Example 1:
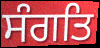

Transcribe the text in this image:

ਸੰਗਤਿ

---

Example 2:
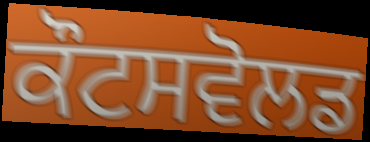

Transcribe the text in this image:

ਕੌਟਸਵੋਲਡ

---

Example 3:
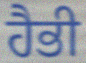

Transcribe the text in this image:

ਹੈਭੀ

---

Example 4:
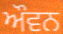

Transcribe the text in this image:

ਔਵਨ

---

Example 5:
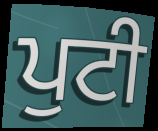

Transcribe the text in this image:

ਪੁਟੀ